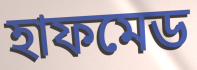
হাফমেড